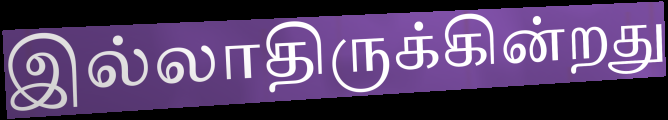
இல்லாதிருக்கின்றது